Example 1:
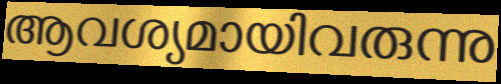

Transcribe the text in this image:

ആവശ്യമായിവരുന്നു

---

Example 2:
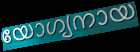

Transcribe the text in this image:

യോഗ്യനായ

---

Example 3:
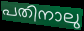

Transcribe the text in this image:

പതിനാലു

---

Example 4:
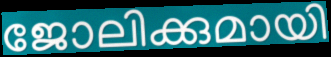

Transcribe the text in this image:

ജോലിക്കുമായി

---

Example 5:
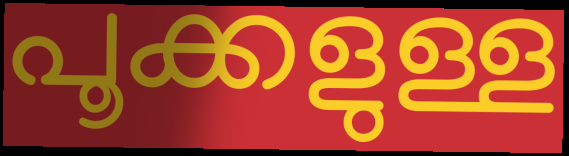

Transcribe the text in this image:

പൂക്കളുള്ള